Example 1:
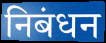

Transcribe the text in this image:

निबंधन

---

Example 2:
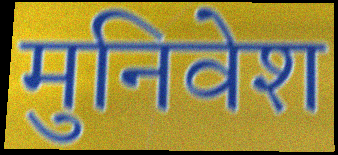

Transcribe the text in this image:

मुनिवेश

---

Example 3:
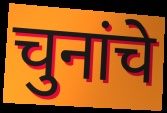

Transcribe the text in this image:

चुनांचे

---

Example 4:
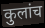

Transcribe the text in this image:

कुलांच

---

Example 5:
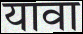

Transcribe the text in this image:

यावा